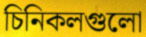
চিনিকলগুলো